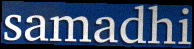
samadhi